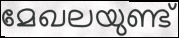
മേഖലയുണ്ട്